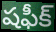
షఫీక్